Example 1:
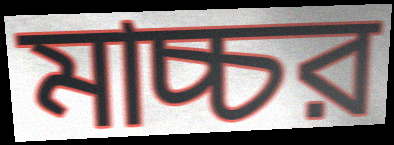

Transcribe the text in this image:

মাচ্চর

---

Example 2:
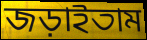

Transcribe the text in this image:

জড়াইতাম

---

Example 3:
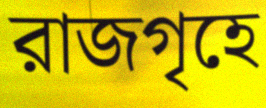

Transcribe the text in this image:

রাজগৃহে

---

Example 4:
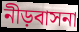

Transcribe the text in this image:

নীড়বাসনা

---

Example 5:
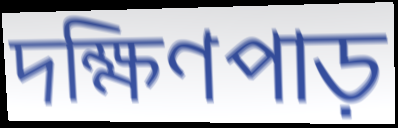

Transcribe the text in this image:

দক্ষিণপাড়